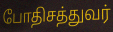
போதிசத்துவர்